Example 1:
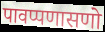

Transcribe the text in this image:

पावप्पणासणो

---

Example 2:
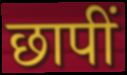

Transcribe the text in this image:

छापीं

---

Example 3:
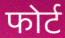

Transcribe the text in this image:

फोर्ट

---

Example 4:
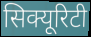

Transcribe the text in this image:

सिक्यूरिटी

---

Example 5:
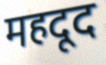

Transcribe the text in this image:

महदूद